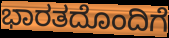
ಭಾರತದೊಂದಿಗೆ